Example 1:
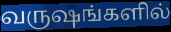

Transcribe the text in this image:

வருஷங்களில்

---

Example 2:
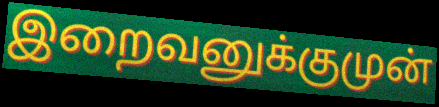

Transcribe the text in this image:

இறைவனுக்குமுன்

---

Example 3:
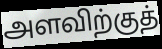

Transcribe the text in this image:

அளவிற்குத்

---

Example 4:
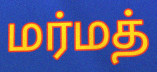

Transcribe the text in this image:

மர்மத்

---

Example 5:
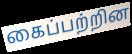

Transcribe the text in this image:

கைப்பற்றின